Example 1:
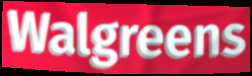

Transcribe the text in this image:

Walgreens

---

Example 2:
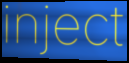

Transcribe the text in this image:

inject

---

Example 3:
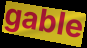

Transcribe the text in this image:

gable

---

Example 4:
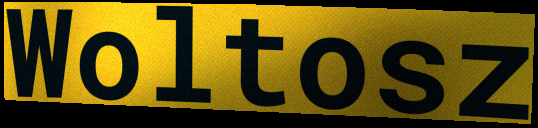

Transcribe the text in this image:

Woltosz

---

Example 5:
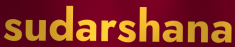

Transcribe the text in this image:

sudarshana